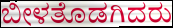
ಬೀಳತೊಡಗಿದರು